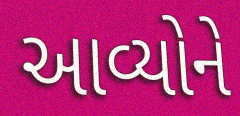
આવ્યોને